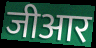
जीआर